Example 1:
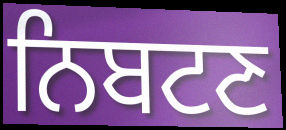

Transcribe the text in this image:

ਨਿਬਟਣ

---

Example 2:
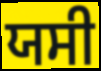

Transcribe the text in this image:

ਯਸੀ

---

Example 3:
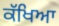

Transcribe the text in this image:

ਕੱਖਿਆ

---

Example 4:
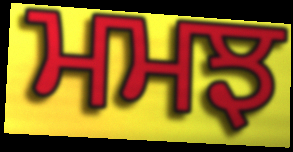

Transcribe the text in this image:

ਮਮਝ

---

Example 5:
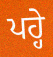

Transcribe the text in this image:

ਪਹ੍ਹੇ